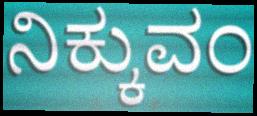
ನಿಕ್ಕುವಂ